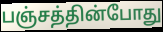
பஞ்சத்தின்போது